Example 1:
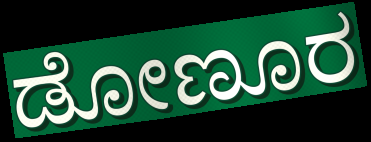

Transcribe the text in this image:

ಡೋಣೂರ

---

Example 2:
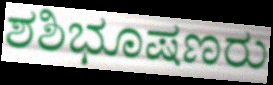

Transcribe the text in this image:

ಶಶಿಭೂಷಣರು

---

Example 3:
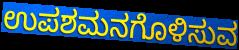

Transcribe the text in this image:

ಉಪಶಮನಗೊಳಿಸುವ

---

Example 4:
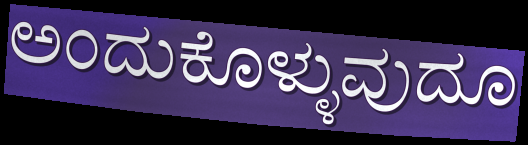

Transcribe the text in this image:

ಅಂದುಕೊಳ್ಳುವುದೂ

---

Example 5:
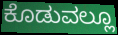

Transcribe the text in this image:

ಕೊಡುವಲ್ಲೂ